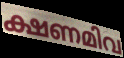
ക്ഷണമിവ